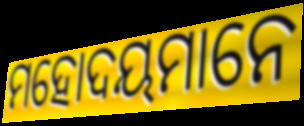
ମହୋଦୟମାନେ